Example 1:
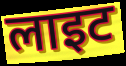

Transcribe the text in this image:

लाइट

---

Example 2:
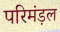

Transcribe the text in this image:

परिमंड़ल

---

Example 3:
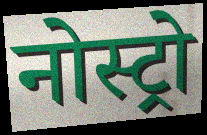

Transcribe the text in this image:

नोस्ट्रो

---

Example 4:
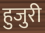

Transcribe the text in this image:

हुजुरी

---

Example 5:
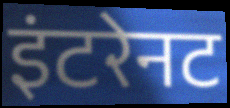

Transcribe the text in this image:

इंटरेनट